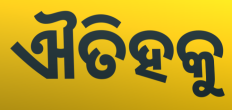
ଐତିହକୁ